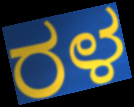
ರಳ